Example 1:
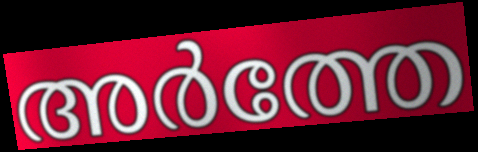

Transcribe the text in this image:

അർത്തേ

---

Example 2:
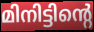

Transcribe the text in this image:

മിനിട്ടിന്റെ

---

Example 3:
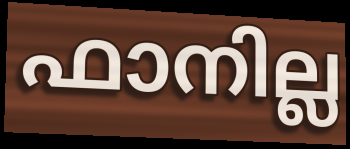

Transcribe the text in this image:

ഫാനില്ല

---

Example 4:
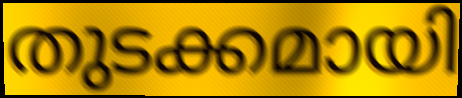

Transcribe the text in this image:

തുടക്കമായി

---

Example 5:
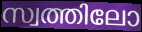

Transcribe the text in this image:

സ്വത്തിലോ